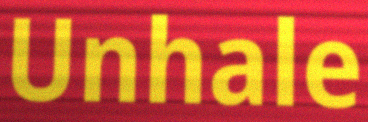
Unhale